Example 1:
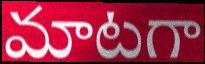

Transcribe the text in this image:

మాటగా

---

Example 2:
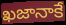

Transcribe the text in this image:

ఖజానాకే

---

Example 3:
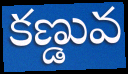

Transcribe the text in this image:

కణ్డువ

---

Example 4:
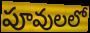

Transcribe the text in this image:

పూవులలో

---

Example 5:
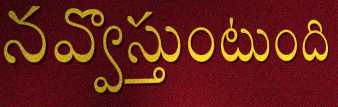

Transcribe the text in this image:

నవ్వొస్తుంటుంది